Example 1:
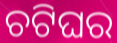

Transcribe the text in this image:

ଚଟିଘର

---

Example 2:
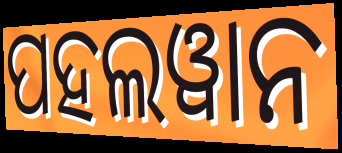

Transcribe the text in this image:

ପହଲୱାନ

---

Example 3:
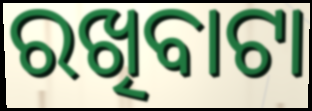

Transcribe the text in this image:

ରଖିବାଟା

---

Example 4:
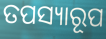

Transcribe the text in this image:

ତପସ୍ୟାରୂପ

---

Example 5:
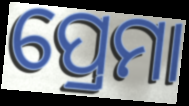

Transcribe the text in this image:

ପ୍ରେମା